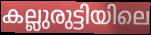
കല്ലുരുട്ടിയിലെ